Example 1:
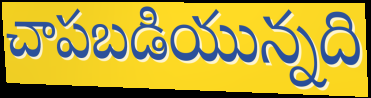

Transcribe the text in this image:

చాపబడియున్నది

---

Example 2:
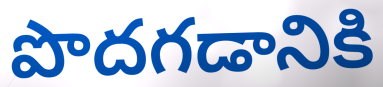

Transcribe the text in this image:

పొదగడానికి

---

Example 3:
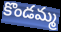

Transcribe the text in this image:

కొండమ్మ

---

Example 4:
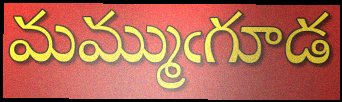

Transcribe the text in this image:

మమ్ముఁగూడ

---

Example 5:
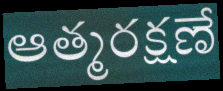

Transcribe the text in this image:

ఆత్మరక్షణే